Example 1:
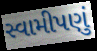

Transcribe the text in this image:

સ્વામીપણું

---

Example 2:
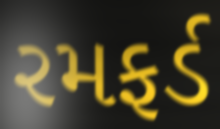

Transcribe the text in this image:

રમફર્ડ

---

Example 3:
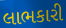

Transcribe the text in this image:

લાભકારી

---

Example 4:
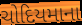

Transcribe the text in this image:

ચોદિયમાના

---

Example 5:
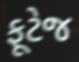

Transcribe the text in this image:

ફૂટેજ